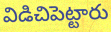
విడిచిపెట్టారు